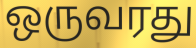
ஒருவரது